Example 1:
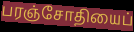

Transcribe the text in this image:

பரஞ்சோதியைப்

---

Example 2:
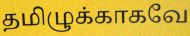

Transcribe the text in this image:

தமிழுக்காகவே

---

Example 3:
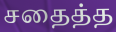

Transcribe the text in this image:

சதைத்த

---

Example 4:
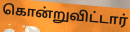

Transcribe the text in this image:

கொன்றுவிட்டார்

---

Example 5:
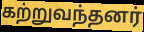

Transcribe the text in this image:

கற்றுவந்தனர்